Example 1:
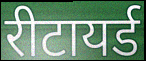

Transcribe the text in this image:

रीटायर्ड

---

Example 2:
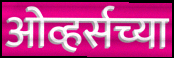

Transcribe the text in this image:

ओव्हर्सच्या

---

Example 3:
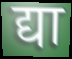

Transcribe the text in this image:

द्या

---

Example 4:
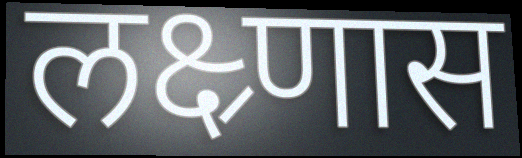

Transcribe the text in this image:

लक्ष्र्णास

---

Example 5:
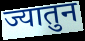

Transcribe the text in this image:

ज्यातुन